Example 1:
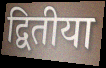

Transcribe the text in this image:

द्वितीया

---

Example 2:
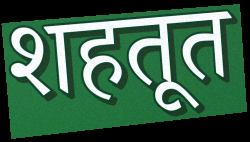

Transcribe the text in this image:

शहतूत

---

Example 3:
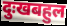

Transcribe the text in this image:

दुःखबहुल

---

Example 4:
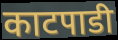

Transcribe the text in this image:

काटपाडी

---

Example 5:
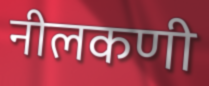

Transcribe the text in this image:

नीलकणी